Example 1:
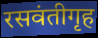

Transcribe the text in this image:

रसवंतीगृह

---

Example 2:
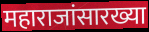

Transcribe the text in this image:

महाराजांसारख्या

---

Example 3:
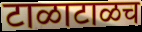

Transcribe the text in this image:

टाळाटाळच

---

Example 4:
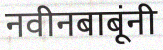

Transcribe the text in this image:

नवीनबाबूंनी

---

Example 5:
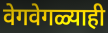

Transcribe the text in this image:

वेगवेगळ्याही